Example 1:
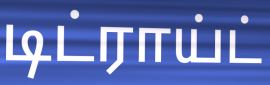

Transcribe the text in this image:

டிட்ராய்ட்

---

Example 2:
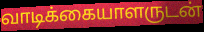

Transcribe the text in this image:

வாடிக்கையாளருடன்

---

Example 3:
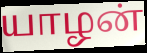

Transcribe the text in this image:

யாழன்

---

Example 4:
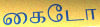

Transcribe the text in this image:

கைடோ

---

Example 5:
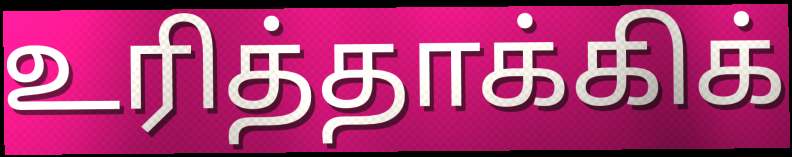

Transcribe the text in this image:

உரித்தாக்கிக்